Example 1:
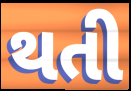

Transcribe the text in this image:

થતી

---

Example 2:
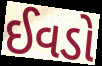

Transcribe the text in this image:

ઈવડો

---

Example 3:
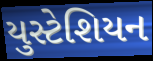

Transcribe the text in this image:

યુસ્ટેશિયન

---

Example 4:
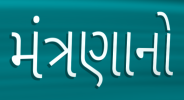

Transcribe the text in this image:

મંત્રણાનો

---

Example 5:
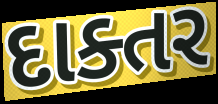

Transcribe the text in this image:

દાક્તર